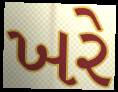
ખરે